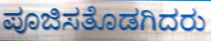
ಪೂಜಿಸತೊಡಗಿದರು